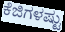
ಕೆಜಿಗಳಷ್ಟು